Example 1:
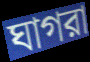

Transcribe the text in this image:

ঘাগরা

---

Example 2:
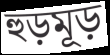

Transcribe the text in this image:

হুড়মূড়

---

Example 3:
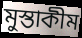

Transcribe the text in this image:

মুস্তাকীম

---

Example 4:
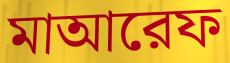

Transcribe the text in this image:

মাআরেফ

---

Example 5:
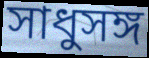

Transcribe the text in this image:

সাধুসঙ্গ